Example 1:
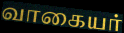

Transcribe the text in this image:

வாகையர்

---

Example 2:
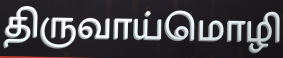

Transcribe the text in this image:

திருவாய்மொழி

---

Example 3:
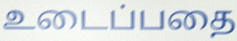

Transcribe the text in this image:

உடைப்பதை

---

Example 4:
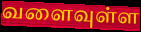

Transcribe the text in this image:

வளைவுள்ள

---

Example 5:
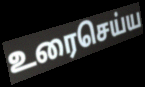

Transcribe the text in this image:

உரைசெய்ய